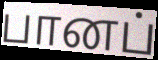
பானப்